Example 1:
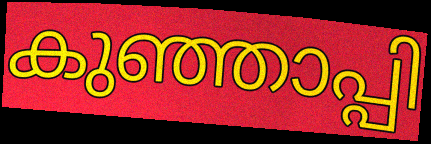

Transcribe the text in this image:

കുഞ്ഞാപ്പി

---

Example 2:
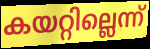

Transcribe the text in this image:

കയറ്റില്ലെന്ന്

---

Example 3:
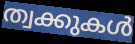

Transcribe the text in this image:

ത്വക്കുകൾ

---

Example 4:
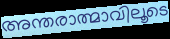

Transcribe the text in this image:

അന്തരാത്മാവിലൂടെ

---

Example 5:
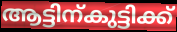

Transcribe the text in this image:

ആട്ടിന്കുട്ടിക്ക്